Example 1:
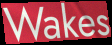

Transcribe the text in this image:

Wakes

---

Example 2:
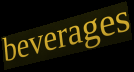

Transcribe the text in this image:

beverages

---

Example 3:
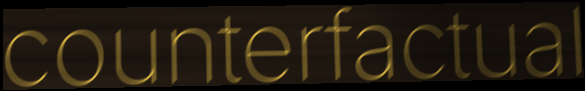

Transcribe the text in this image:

counterfactual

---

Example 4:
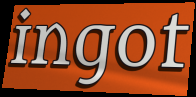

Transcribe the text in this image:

ingot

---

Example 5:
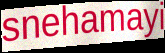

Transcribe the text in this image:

snehamayi